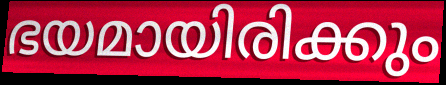
ഭയമായിരിക്കും